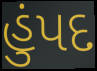
હુંપદ